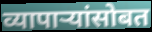
व्यापाऱ्यांसोबत